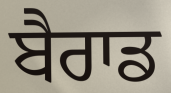
ਬੈਰਾਡ